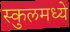
स्कुलमध्ये